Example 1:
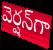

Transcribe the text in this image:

వెర్షన్‌గా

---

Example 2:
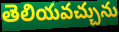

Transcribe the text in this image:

తెలియవచ్చును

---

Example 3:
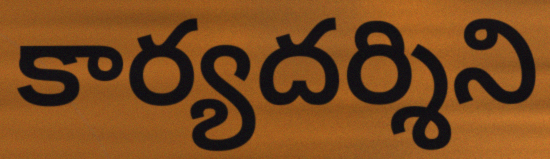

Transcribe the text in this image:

కార్యదర్శిని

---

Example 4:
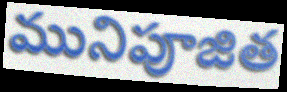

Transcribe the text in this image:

మునిపూజిత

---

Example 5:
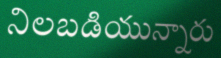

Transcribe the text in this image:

నిలబడియున్నారు